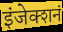
इंजेक्शनं